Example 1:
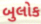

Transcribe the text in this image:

બુલોક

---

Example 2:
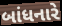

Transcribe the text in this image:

બાંધનારે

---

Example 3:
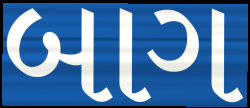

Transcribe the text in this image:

બાગ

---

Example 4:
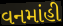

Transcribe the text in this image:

વનમાંહી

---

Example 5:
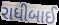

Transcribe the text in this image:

રાધીબાઈ